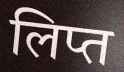
लिप्त